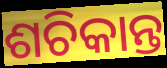
ଶଚିକାନ୍ତ